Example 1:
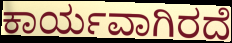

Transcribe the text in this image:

ಕಾರ್ಯವಾಗಿರದೆ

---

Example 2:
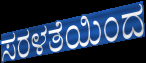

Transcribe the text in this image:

ಸರಳತೆಯಿಂದ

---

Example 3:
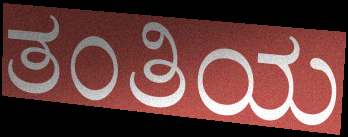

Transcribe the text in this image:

ತಂತಿಯ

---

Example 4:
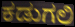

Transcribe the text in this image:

ಕಡುಗಲಿ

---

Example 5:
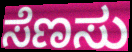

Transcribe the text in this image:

ಸೆಣಸು